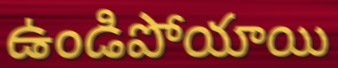
ఉండిపోయాయి